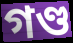
গণ্ড